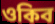
ওকিব